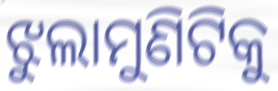
ଝୁଲାମୁଣିଟିକୁ